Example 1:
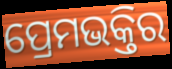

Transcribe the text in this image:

ପ୍ରେମଭକ୍ତିର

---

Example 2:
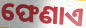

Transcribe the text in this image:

ଫେଣାଏ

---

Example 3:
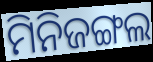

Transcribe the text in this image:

ମିନିଜଙ୍ଗଲ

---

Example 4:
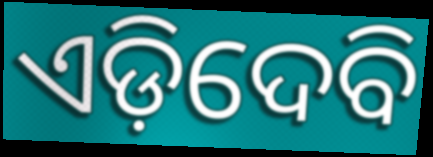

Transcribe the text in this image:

ଏଡ଼ିଦେବି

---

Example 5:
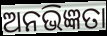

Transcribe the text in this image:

ଅନଭିଜ୍ଞତା